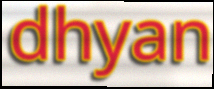
dhyan